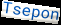
Tsepon